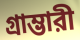
গ্রাম্ভারী